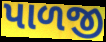
પાળજી